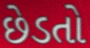
છેડતો